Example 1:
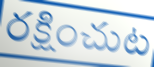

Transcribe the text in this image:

రక్షించుట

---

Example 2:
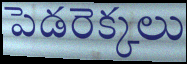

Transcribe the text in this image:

పెడరెక్కలు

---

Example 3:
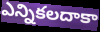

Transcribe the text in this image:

ఎన్నికలదాకా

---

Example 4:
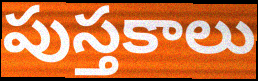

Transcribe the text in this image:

పుస్తకాలు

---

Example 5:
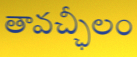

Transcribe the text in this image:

తావచ్ఛీలం